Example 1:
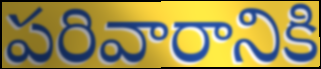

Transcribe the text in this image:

పరివారానికి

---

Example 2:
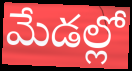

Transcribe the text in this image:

మేడల్లో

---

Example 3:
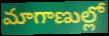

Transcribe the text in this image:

మాగాణుల్లో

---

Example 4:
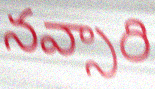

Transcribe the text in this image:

నవ్సారి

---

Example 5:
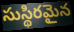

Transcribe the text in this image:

సుస్థిరమైన